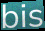
bis